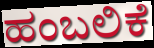
ಹಂಬಲಿಕೆ